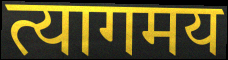
त्यागमय